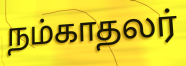
நம்காதலர்